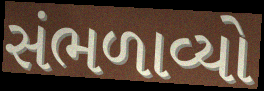
સંભળાવ્યો